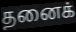
தனைக்